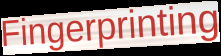
Fingerprinting